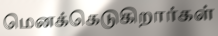
மெனக்கெடுகிறார்கள்